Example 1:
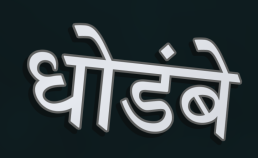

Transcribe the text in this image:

धोडंबे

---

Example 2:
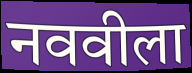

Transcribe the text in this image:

नववीला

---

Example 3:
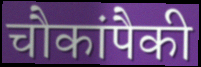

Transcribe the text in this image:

चौकांपैकी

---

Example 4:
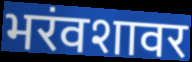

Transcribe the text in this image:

भरंवशावर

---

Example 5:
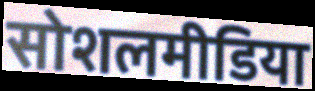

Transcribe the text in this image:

सोशलमीडिया